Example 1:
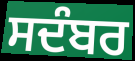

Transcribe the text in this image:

ਸਦੰਬਰ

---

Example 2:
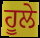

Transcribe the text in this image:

ਹੂਲੇ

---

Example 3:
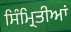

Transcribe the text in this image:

ਸਿੰਮ੍ਰਿਤੀਆਂ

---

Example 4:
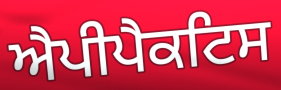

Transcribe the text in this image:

ਐਪੀਪੈਕਟਿਸ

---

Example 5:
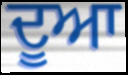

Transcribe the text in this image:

ਦੂਆ